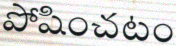
పోషించటం